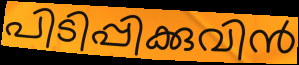
പിടിപ്പിക്കുവിൻ